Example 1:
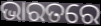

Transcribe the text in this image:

ଭାରତରେ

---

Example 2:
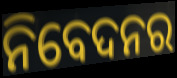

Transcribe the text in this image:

ନିବେଦନର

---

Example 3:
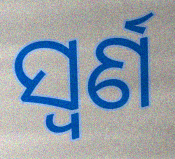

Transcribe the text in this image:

ସ୍ୱର୍ଣ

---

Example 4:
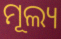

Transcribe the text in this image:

ମୂଲ୍ୟ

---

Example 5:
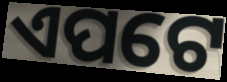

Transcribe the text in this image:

ଏପଟେ